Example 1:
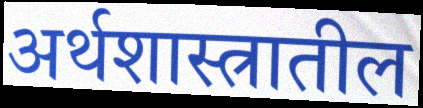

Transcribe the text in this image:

अर्थशास्त्रातील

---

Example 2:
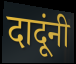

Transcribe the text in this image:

दादूंनी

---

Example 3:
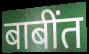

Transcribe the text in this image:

बाबींत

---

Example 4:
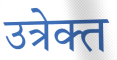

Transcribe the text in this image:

उत्रेक्त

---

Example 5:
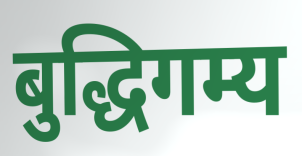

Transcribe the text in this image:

बुद्धिगम्य